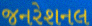
જનરેશનલ